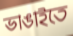
ভাঙাইতে